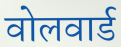
वोलवार्ड